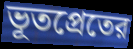
ভূতপ্রেতের